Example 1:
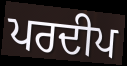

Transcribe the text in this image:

ਪਰਦੀਪ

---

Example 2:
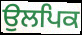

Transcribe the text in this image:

ਉਲਪਿਕ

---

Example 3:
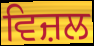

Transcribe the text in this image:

ਵਿਜ਼ਲ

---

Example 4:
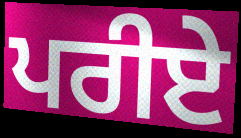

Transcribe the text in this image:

ਪਰੀਏ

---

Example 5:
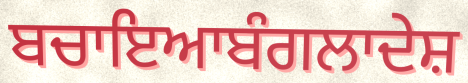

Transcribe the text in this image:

ਬਚਾਇਆਬੰਗਲਾਦੇਸ਼